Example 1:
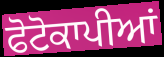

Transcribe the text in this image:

ਫੋਟੋਕਾਪੀਆਂ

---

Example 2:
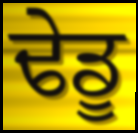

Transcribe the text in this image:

ਢੇਡੂ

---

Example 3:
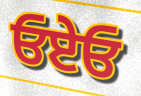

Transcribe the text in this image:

ਓਏਓ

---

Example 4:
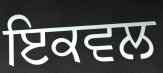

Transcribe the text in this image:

ਇਕਵਲ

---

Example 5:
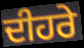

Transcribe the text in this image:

ਦੀਹਰੇ